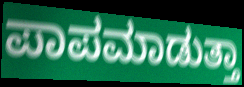
ಪಾಪಮಾಡುತ್ತಾ